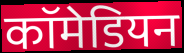
कॉमेडियन